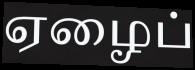
ஏழைப்